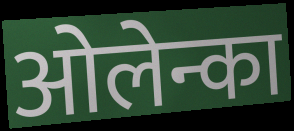
ओलेन्का